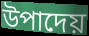
উপাদেয়